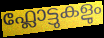
ഫ്ലോട്ടുകളും